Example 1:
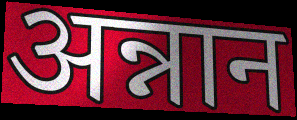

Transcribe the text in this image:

अन्नान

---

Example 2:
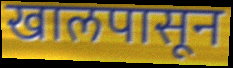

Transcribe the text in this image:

खालपासून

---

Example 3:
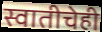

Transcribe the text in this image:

स्वातीचेही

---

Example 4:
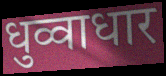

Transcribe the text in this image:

धुव्वाधार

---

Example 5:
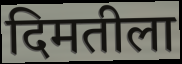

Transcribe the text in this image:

दिमतीला